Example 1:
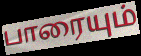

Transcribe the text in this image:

பாரையும்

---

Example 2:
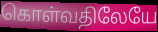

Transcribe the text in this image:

கொள்வதிலேயே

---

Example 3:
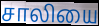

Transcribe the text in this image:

சாலியை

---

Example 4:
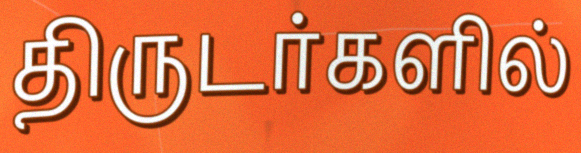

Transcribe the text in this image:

திருடர்களில்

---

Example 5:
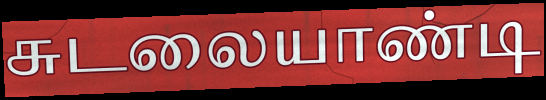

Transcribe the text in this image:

சுடலையாண்டி